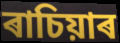
ৰাচিয়াৰ